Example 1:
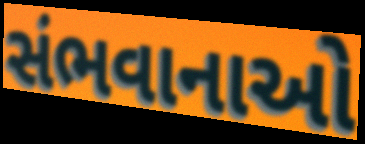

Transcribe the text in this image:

સંભવાનાઓ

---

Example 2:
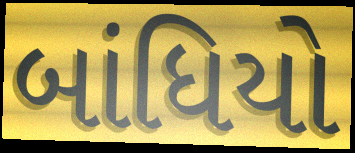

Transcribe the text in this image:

બાંધિયો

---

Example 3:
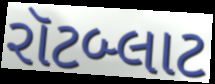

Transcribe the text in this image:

રૉટબ્લાટ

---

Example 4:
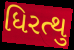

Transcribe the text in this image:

ધિરત્થુ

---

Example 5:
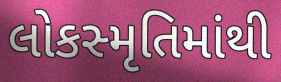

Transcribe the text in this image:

લોકસ્મૃતિમાંથી